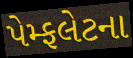
પેમ્ફલેટના